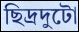
ছিদ্রদুটো